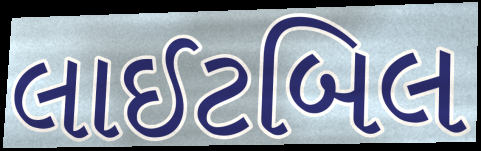
લાઈટબિલ